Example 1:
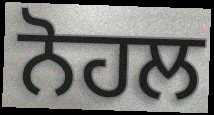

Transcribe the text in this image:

ਨੋਹਲ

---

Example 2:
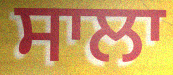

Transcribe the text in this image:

ਸਾਲਾ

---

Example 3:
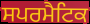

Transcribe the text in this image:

ਸਪਰਮੈਟਿਕ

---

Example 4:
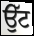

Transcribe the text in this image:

ਉੱਟ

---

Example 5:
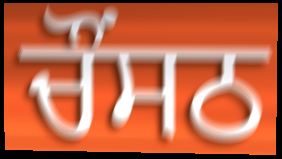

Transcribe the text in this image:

ਚੌਂਸਠ